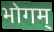
भोगम्